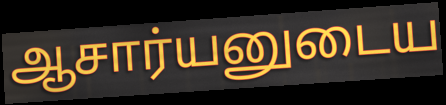
ஆசார்யனுடைய